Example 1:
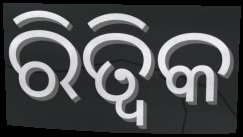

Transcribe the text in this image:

ରିତ୍ୱିକ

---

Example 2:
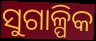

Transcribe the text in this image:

ସୁଗାଳ୍ପିକ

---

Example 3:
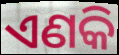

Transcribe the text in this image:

ଏଣକି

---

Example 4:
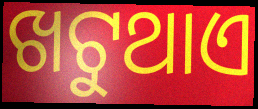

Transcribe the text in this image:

ଖଟୁଥାଏ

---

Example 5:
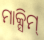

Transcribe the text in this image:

ମାକ୍ସିମ୍